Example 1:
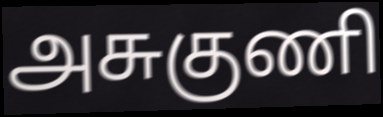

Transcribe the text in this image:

அசுகுணி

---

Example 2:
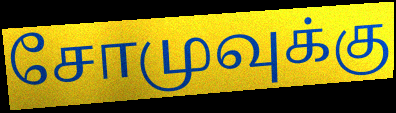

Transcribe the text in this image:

சோமுவுக்கு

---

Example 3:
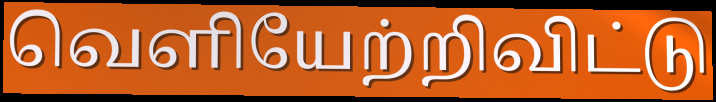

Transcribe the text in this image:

வெளியேற்றிவிட்டு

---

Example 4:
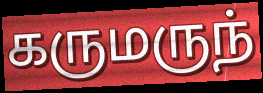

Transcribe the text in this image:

கருமருந்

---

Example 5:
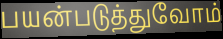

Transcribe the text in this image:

பயன்படுத்துவோம்